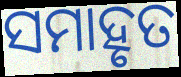
ସମାହୃତ